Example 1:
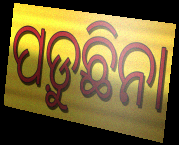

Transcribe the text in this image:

ପଡ଼ୁଛିନା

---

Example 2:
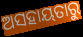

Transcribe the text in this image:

ଅସହାୟତାରୁ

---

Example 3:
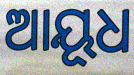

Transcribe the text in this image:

ଆୟୂଧ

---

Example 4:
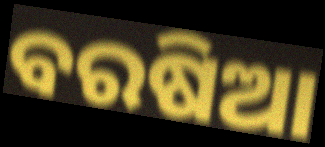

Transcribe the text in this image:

ବରଷିଆ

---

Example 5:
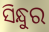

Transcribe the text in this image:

ସିନ୍ଧୁର